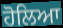
ਹੋਲਿਆ